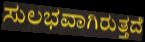
ಸುಲಭವಾಗಿರುತ್ತದೆ